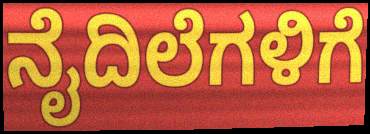
ನೈದಿಲೆಗಳಿಗೆ